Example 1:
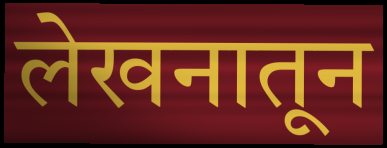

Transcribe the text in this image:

लेखनातून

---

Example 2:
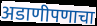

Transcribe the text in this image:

अडाणीपणाचा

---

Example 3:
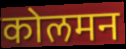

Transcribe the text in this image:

कोलमन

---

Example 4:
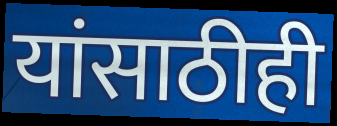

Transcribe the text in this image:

यांसाठीही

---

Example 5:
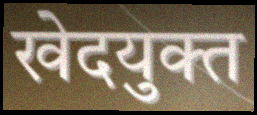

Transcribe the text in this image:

खेदयुक्त